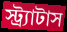
স্ট্র্যাটাস